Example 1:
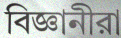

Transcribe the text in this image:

বিজ্ঞানীরা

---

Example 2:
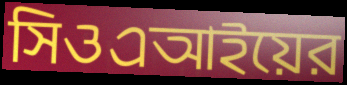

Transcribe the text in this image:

সিওএআইয়ের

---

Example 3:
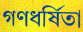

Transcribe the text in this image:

গণধর্ষিতা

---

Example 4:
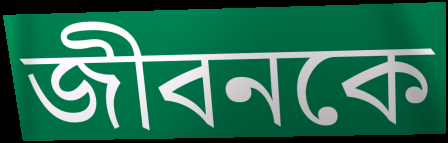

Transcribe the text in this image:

জীবনকে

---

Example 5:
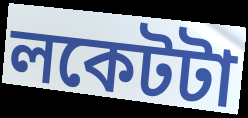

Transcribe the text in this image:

লকেটটা